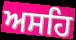
ਅਸਹਿ